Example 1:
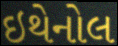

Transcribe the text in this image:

ઇથેનોલ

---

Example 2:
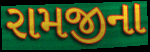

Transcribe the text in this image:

રામજીના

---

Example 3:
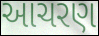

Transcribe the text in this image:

આચરણ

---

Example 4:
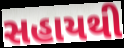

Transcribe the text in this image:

સહાયથી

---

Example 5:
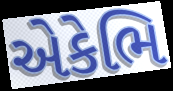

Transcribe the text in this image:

એકેભિ